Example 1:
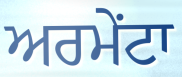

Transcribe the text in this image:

ਅਰਮੇਂਟਾ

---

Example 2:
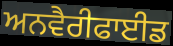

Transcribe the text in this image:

ਅਨਵੈਰੀਫਾਈਡ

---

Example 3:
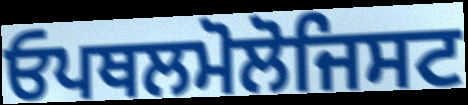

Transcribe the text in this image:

ਓਪਥਲਮੋਲੋਜਿਸਟ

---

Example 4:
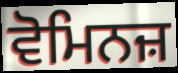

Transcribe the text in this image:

ਵੋਮਿਨਜ਼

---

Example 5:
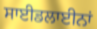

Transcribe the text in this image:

ਸਾਈਡਲਾਈਨਾਂ